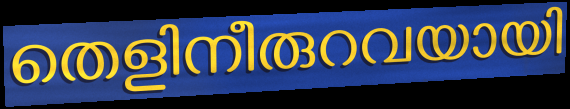
തെളിനീരുറവയായി